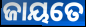
ଜାୟତେ